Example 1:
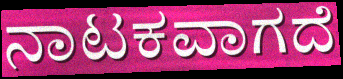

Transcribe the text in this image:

ನಾಟಕವಾಗದೆ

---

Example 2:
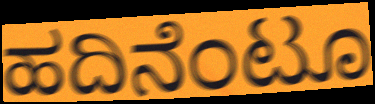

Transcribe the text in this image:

ಹದಿನೆಂಟೂ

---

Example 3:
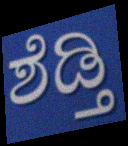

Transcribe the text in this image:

ಶೆಡ್ತಿ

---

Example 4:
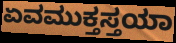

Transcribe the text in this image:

ಏವಮುಕ್ತಸ್ತಯಾ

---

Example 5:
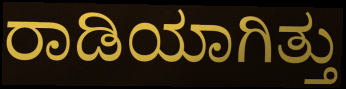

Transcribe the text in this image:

ರಾಡಿಯಾಗಿತ್ತು